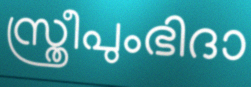
സ്ത്രീപുംഭിദാ